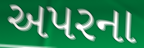
અપરના